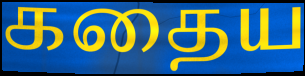
கதைய